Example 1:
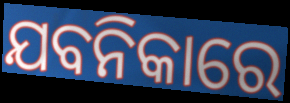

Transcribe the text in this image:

ଯବନିକାରେ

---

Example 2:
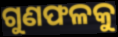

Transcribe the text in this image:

ଗୁଣଫଳକୁ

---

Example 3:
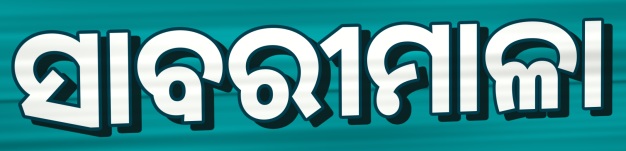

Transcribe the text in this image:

ସାବରୀମାଳା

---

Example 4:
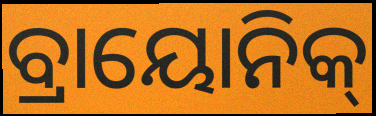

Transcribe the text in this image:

ବ୍ରାୟୋନିକ୍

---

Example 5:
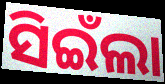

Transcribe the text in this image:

ସିଇଁଲା